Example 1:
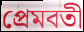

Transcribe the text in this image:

প্রেমবতী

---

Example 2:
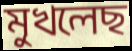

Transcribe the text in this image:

মুখলেছ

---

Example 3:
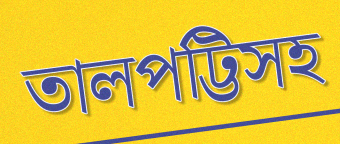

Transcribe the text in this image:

তালপট্টিসহ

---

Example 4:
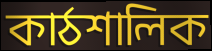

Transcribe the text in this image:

কাঠশালিক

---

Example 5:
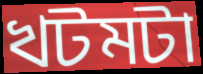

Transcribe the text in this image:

খটমটা